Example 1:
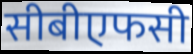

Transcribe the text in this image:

सीबीएफसी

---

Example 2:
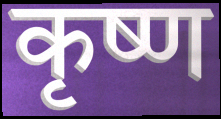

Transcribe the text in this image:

कृष्ण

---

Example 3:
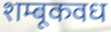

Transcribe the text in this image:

शम्बूकवध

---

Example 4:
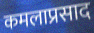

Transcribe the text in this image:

कमलाप्रसाद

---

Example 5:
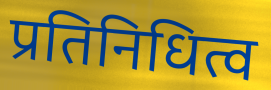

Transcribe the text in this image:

प्रतिनिधित्व